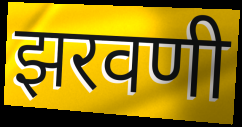
झरवणी